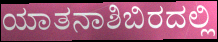
ಯಾತನಾಶಿಬಿರದಲ್ಲಿ